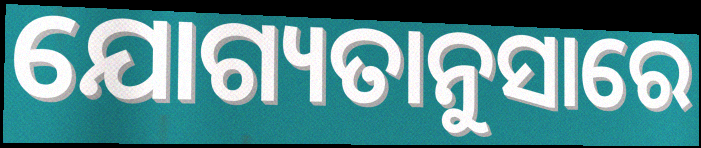
ଯୋଗ୍ୟତାନୁସାରେ